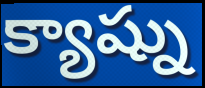
క్యాష్ను